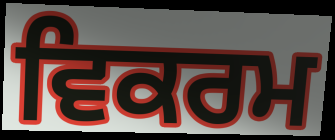
ਵਿਕਰਮ